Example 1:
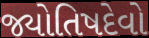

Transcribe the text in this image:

જ્યોતિષદેવો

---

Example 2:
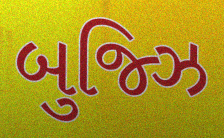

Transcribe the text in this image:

બુજ્ઝિ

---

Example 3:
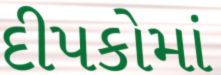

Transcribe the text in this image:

દીપકોમાં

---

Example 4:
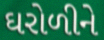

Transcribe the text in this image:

ઘરોળીને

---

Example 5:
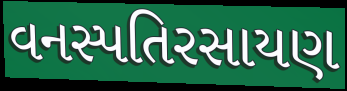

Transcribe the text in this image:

વનસ્પતિરસાયણ